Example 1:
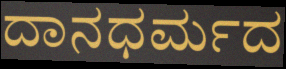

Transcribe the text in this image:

ದಾನಧರ್ಮದ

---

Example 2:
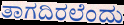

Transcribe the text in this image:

ತಾಗದಿರಲೆಂದು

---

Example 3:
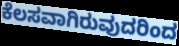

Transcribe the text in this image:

ಕೆಲಸವಾಗಿರುವುದರಿಂದ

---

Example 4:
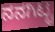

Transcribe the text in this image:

ನನಗಿಟ್ಟ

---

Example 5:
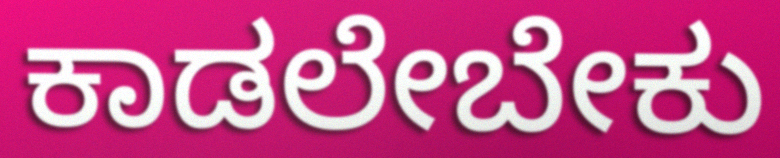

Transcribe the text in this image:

ಕಾಡಲೇಬೇಕು